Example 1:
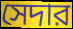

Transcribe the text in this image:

সেদার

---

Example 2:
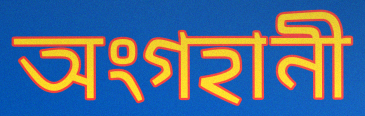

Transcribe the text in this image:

অংগহানী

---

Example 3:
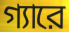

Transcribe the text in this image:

গ্যারে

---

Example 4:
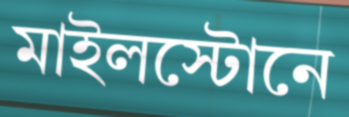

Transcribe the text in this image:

মাইলস্টোনে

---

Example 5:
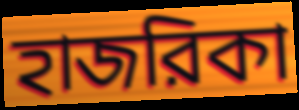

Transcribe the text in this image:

হাজরিকা